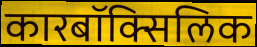
कारबॉक्सिलिक